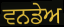
ਵਨਡੇਅ